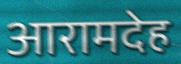
आरामदेह